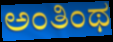
ಅಂತಿಂಥ